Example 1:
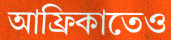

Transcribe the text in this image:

আফ্রিকাতেও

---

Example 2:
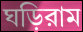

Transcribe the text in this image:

ঘড়িরাম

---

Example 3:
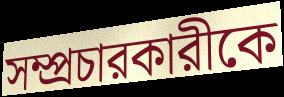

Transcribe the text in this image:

সম্প্রচারকারীকে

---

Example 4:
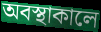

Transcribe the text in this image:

অবস্থাকালে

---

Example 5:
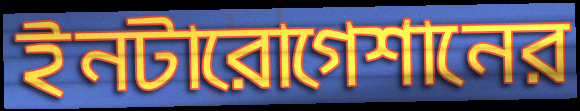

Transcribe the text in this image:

ইনটারোগেশানের